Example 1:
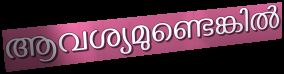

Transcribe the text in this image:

ആവശ്യമുണ്ടെങ്കിൽ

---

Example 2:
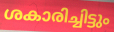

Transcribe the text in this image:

ശകാരിച്ചിട്ടും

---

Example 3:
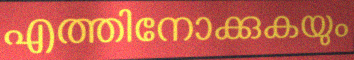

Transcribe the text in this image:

എത്തിനോക്കുകയും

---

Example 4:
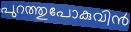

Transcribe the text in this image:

പുറത്തുപോകുവിൻ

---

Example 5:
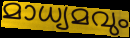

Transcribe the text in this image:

മാധ്യമവും